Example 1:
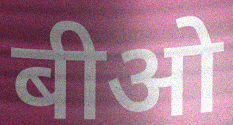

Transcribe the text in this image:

बीओ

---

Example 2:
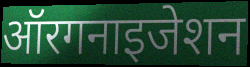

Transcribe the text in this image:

ऑरगनाइजेशन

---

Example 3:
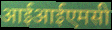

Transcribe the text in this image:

आईआईएमसी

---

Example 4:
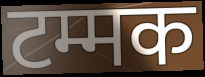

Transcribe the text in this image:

टम्मक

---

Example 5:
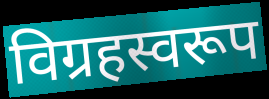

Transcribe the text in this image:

विग्रहस्वरूप